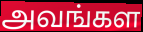
அவங்கள